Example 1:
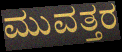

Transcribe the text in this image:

ಮುವತ್ತರ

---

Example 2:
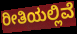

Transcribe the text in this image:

ರೀತಿಯಲ್ಲಿವೆ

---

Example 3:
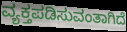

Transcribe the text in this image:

ವ್ಯಕ್ತಪಡಿಸುವಂತಾಗಿದೆ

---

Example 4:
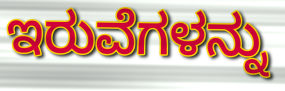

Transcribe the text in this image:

ಇರುವೆಗಳನ್ನು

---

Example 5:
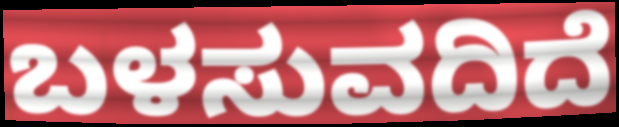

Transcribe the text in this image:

ಬಳಸುವದಿದೆ